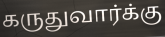
கருதுவார்க்கு